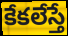
కేకలేస్తే